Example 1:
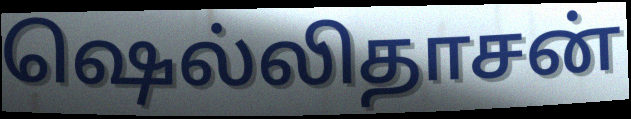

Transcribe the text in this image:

ஷெல்லிதாசன்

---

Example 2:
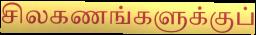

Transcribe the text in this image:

சிலகணங்களுக்குப்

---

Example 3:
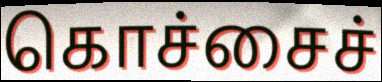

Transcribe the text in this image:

கொச்சைச்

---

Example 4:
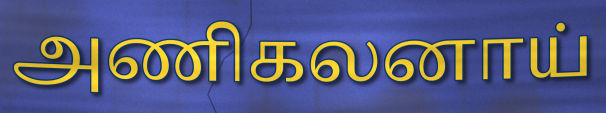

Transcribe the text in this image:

அணிகலனாய்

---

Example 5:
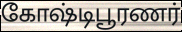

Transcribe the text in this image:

கோஷ்டிபூரணர்